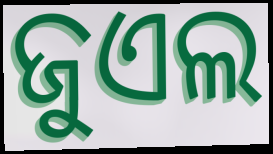
ଜୁଏଲ